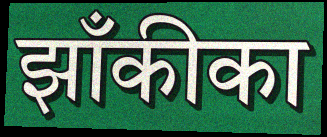
झाँकीका